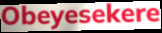
Obeyesekere